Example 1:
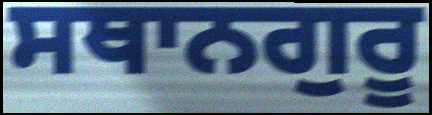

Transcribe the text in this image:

ਸਥਾਨਗੁਰੂ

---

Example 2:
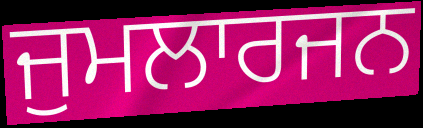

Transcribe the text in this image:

ਜੁਮਲਾਰਜਨ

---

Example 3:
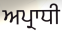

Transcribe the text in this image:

ਅਪ੍ਰਾਧੀ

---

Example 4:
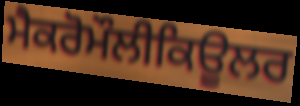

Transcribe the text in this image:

ਮੈਕਰੋਮੌਲੀਕਿਊਲਰ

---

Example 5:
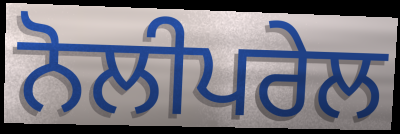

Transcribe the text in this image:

ਨੋਲੀਪਰੇਲ